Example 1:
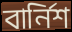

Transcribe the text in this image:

বার্নিশ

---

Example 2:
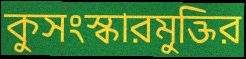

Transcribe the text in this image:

কুসংস্কারমুক্তির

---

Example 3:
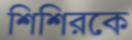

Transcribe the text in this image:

শিশিরকে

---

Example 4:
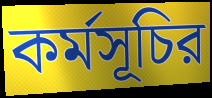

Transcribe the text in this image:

কর্মসূচির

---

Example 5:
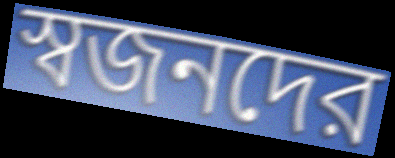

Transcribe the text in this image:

স্বজনদের